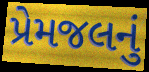
પ્રેમજલનું